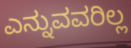
ಎನ್ನುವವರಿಲ್ಲ